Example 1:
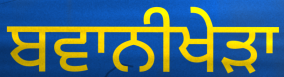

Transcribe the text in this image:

ਬਵਾਨੀਖੇੜਾ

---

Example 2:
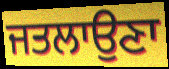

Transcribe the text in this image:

ਜਤਲਾਉਣਾ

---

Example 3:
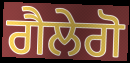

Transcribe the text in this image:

ਗੈਲੇਗੋ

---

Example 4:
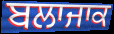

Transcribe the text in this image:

ਬਲਾਜਾਕ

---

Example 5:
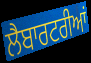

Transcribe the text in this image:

ਲੈਬਾਰਟਰੀਆਂ